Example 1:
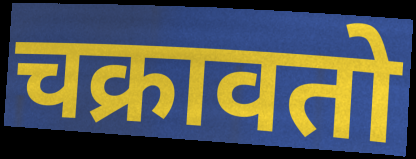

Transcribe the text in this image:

चक्रावतो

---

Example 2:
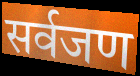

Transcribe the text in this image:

सर्वजण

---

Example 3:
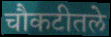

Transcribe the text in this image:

चौकटीतले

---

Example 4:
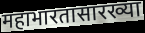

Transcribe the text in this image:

महाभारतासारख्या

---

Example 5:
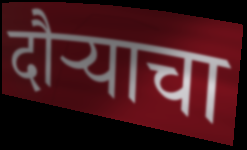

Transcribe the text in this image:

दौऱ्याचा